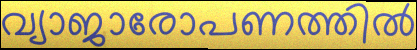
വ്യാജാരോപണത്തിൽ